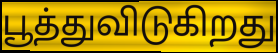
பூத்துவிடுகிறது